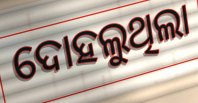
ଦୋହଲୁଥିଲା